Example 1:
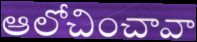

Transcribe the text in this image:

ఆలోచించావా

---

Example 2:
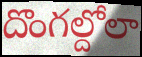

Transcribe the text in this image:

దొంగల్దోలా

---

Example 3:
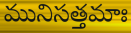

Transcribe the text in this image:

మునిసత్తమాః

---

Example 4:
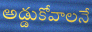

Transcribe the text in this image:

అడ్డుకోవాలనే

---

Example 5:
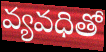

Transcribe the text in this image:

వ్యవధితో